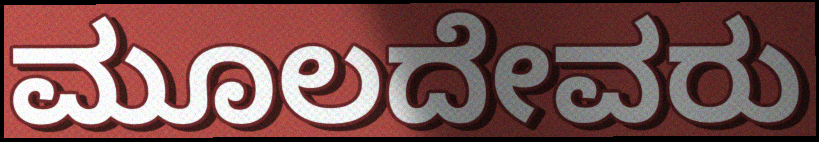
ಮೂಲದೇವರು